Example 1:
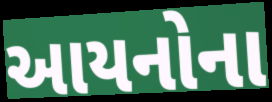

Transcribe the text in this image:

આયનોના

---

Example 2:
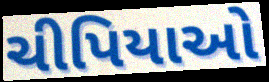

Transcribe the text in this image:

ચીપિયાઓ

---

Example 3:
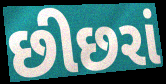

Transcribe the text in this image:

છીછરાં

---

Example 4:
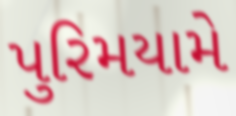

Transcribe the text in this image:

પુરિમયામે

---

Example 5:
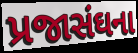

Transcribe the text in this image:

પ્રજાસંઘના